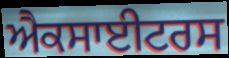
ਐਕਸਾਈਟਰਸ